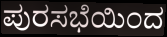
ಪುರಸಭೆಯಿಂದ